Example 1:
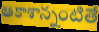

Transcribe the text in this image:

ఆకాశాన్నంటితే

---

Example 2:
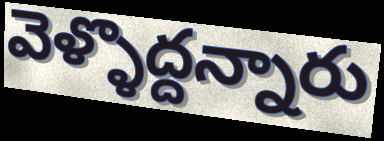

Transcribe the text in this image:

వెళ్ళొద్దన్నారు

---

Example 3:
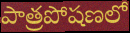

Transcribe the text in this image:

పాత్రపోషణలో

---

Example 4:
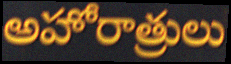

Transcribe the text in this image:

అహోరాత్రులు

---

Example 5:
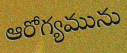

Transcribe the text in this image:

ఆరోగ్యమును